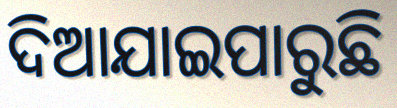
ଦିଆଯାଇପାରୁଛି